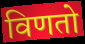
विणतो